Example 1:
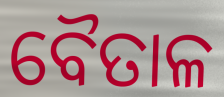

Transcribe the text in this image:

ବୈତାଳ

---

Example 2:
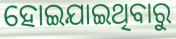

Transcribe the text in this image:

ହୋଇଯାଇଥିବାରୁ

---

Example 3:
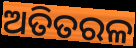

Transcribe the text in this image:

ଅତିତରଳ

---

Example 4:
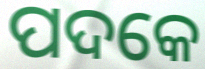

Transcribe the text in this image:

ପଦକେ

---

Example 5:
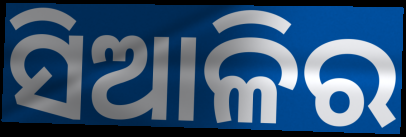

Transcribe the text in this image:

ସିଆଳିର